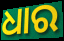
ଧାର